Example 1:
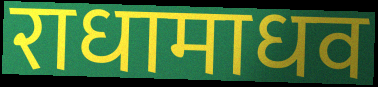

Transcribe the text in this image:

राधामाधव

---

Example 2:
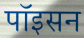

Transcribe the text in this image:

पॉइसन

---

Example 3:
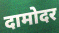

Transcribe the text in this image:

दामोदर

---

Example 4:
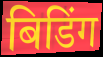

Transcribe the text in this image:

बिडिंग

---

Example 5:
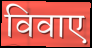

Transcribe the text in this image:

विवाए